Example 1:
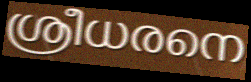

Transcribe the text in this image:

ശ്രീധരനെ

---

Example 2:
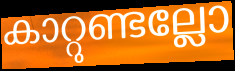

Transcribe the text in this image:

കാറ്റുണ്ടല്ലോ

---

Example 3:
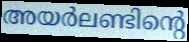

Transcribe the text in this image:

അയർലണ്ടിന്റെ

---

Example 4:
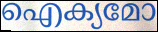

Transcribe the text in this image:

ഐക്യമോ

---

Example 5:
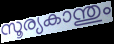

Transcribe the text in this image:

സൂര്യകാന്തും